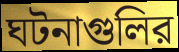
ঘটনাগুলির